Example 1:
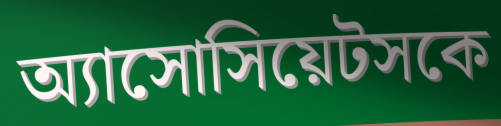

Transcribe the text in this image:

অ্যাসোসিয়েটসকে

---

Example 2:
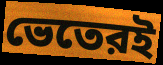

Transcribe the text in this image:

ভেতেরই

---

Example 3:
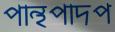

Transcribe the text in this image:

পান্থপাদপ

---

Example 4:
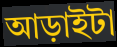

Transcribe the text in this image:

আড়াইটা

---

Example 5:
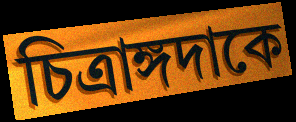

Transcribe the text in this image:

চিত্রাঙ্গদাকে